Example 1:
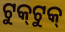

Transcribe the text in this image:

ଟୁକ୍‌ଟୁକ୍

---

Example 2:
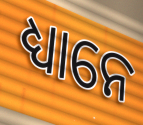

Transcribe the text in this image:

ଧ୍ୟାନେ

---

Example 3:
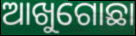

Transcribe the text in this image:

ଆଖୁଗୋଛା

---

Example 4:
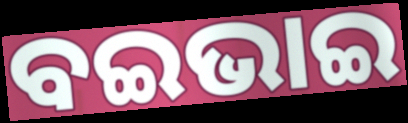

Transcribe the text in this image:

ବଇଭାଇ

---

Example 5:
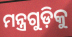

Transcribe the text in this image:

ମନ୍ତ୍ରଗୁଡ଼ିକୁ